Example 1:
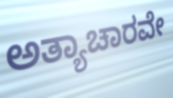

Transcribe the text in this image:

ಅತ್ಯಾಚಾರವೇ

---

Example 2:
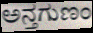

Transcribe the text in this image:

ಅನ್ತಗುಣಂ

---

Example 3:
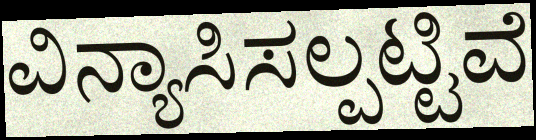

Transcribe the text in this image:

ವಿನ್ಯಾಸಿಸಲ್ಪಟ್ಟಿವೆ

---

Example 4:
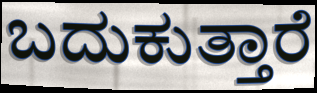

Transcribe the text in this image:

ಬದುಕುತ್ತಾರೆ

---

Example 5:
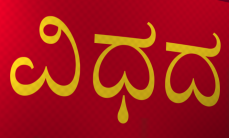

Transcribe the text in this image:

ವಿಧದ